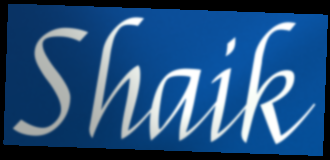
Shaik